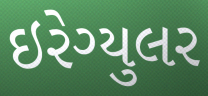
ઇરેગ્યુલર